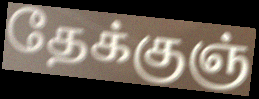
தேக்குஞ்